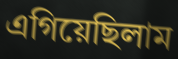
এগিয়েছিলাম